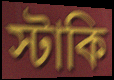
স্টাকি